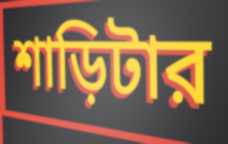
শাড়িটার